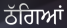
ਠੱਗਿਆਂ